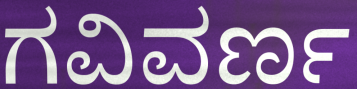
ಗವಿವರ್ಣ